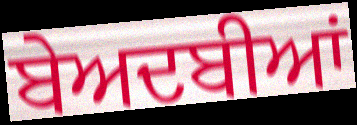
ਬੇਅਦਬੀਆਂ